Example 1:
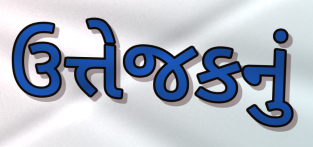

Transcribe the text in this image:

ઉત્તેજકનું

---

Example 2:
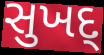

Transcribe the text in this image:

સુખદ્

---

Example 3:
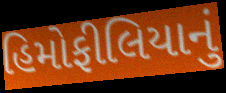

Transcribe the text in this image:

હિમોફીલિયાનું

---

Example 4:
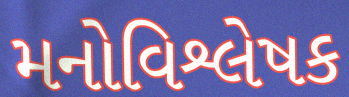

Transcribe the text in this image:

મનોવિશ્લેષક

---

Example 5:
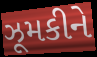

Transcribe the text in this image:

ઝૂમકીને